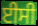
ਈਸੀ